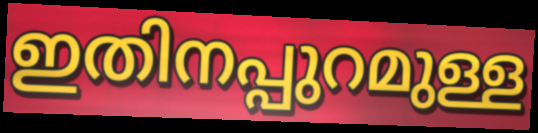
ഇതിനപ്പുറമുള്ള